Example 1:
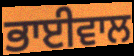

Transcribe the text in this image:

ਭਾਈਵਾਲ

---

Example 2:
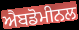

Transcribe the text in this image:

ਐਬਡੋਮੀਨਲ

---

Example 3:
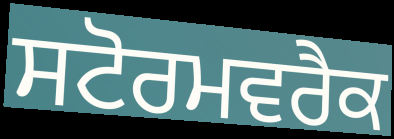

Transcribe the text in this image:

ਸਟੋਰਮਵਰੈਕ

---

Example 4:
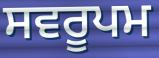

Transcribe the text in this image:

ਸਵਰੂਪਮ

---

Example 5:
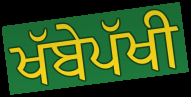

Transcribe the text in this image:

ਖੱਬੇਪੱਖੀ